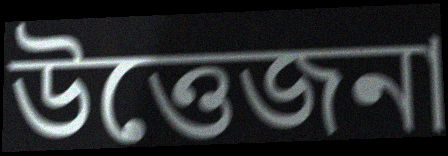
উত্তেজনা